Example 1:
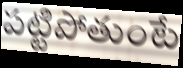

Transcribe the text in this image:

పట్టిపోతుంటే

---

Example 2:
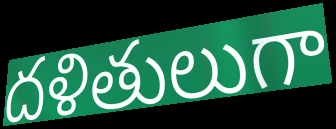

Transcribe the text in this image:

దళితులుగా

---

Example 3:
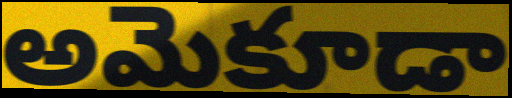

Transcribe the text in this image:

అమెకూడా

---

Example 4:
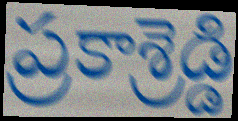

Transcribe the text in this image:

ప్రకాశ్రెడ్డి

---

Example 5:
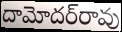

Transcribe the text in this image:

దామోదర్‌రావు